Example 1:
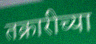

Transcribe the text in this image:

तक्रारीच्या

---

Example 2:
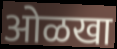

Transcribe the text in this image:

ओळखा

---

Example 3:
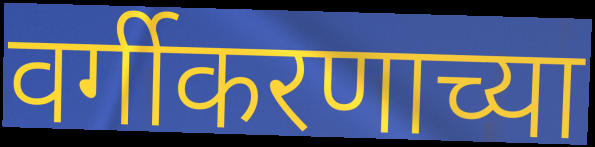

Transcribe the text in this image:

वर्गीकरणाच्या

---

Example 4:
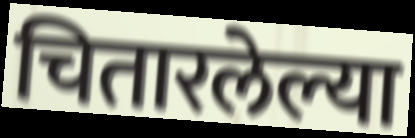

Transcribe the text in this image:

चितारलेल्या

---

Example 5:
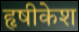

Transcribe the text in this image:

हृषीकेश